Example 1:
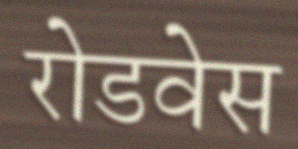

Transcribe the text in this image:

रोडवेस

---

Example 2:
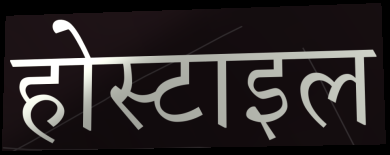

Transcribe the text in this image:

होस्टाइल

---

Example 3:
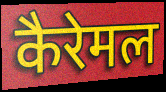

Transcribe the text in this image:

कैरेमल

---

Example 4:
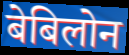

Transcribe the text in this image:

बेबिलोन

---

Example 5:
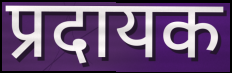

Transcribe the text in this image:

प्रदायक